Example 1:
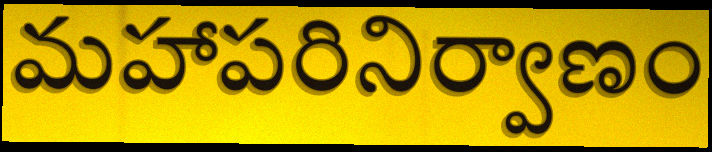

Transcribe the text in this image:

మహాపరినిర్వాణం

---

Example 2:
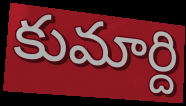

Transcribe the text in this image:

కుమార్ది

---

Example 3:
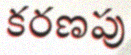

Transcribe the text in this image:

కరణపు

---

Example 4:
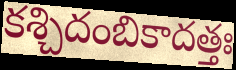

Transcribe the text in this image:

కశ్చిదంబికాదత్తః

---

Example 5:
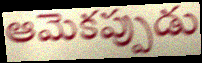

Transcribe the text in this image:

ఆమెకప్పుడు